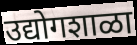
उद्योगशाळा